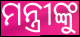
ମନ୍ତ୍ରୀଙ୍କୁ